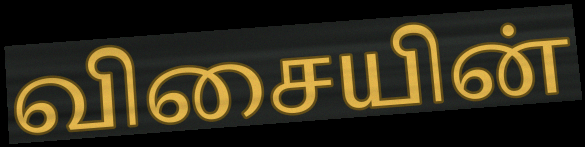
விசையின்